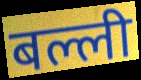
बल्ली